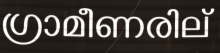
ഗ്രാമീണരില്